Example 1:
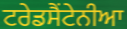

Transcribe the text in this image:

ਟਰੇਡਸੈਂਟੇਨੀਆ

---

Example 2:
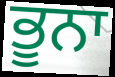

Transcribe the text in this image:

ਭੂਨਾ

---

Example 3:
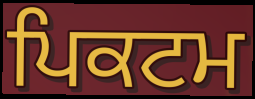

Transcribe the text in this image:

ਪਿਕਟਮ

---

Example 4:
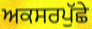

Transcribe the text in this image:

ਅਕਸਰਪੁੱਛੇ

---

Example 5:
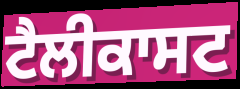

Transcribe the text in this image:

ਟੈਲੀਕਾਸਟ